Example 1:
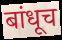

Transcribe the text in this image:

बांधूच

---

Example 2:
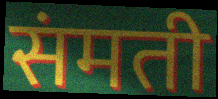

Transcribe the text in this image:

संमती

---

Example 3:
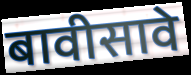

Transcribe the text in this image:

बावीसावे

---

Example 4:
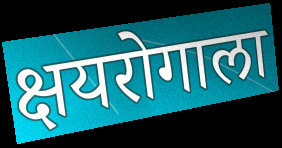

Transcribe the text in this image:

क्षयरोगाला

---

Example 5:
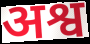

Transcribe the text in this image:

अश्व